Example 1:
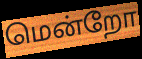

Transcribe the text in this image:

மென்றோ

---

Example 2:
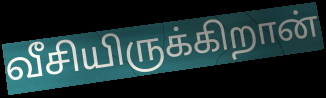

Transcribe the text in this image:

வீசியிருக்கிறான்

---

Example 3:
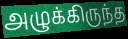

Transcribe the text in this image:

அழுக்கிருந்த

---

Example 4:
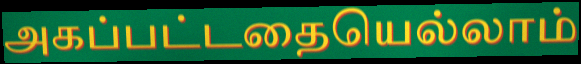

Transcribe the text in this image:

அகப்பட்டதையெல்லாம்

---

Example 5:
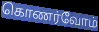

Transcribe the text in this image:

கொணர்வோம்